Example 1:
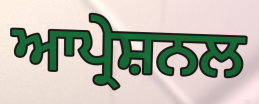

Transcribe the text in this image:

ਆਪ੍ਰੇਸ਼ਨਲ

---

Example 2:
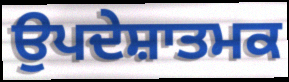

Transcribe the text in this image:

ਉਪਦੇਸ਼ਾਤਮਕ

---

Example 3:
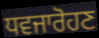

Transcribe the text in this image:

ਧਵਜਾਰੋਹਣ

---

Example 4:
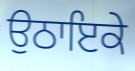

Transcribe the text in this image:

ਉਠਾਇਕੇ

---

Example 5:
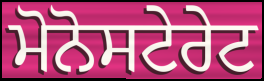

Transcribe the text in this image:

ਮੋਨੋਸਟੇਰੇਟ